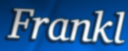
Frankl